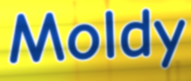
Moldy